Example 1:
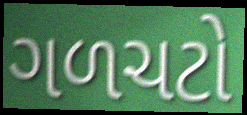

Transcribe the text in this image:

ગળચટો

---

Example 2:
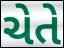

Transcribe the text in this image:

ચેતે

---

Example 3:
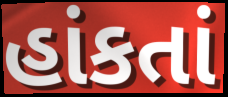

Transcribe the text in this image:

હાંકતાં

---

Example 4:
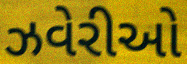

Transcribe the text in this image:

ઝવેરીઓ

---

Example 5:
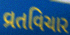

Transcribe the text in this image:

વ્રતવિચાર